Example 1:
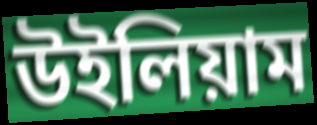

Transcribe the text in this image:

উইলিয়াম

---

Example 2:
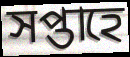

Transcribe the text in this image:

সপ্তাহে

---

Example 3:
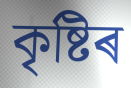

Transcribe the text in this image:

কৃষ্টিৰ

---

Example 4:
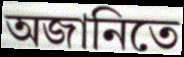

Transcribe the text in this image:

অজানিতে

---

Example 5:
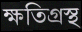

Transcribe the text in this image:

ক্ষতিগ্ৰস্থ